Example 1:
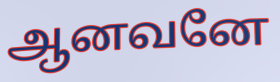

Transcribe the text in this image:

ஆனவனே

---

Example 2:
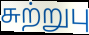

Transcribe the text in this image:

சுற்றுபு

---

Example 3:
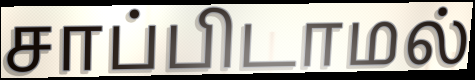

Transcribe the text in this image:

சாப்பிடாமல்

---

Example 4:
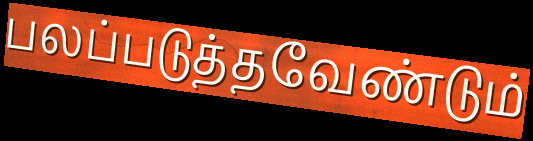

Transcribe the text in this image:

பலப்படுத்தவேண்டும்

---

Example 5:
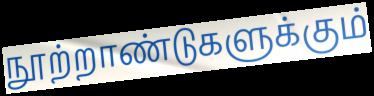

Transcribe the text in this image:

நூற்றாண்டுகளுக்கும்